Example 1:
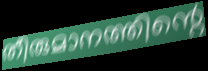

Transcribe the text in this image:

തീരുമാനത്തിന്റെ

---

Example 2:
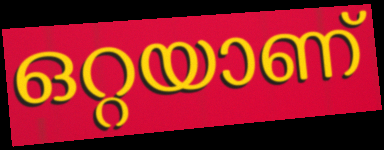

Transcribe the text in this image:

ഒറ്റയാണ്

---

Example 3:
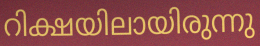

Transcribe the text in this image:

റിക്ഷയിലായിരുന്നു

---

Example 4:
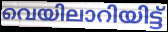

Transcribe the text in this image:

വെയിലാറിയിട്ട്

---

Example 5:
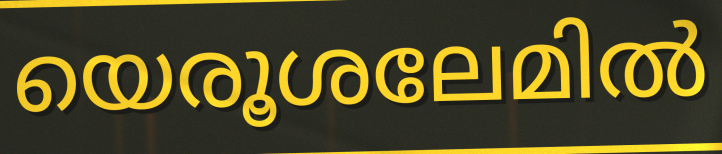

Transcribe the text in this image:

യെരൂശലേമിൽ